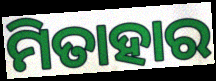
ମିତାହାର